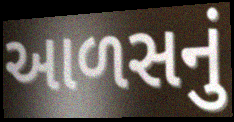
આળસનું